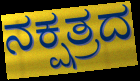
ನಕ್ಷತ್ರದ